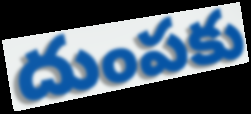
దుంపకు